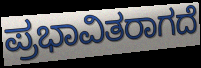
ಪ್ರಭಾವಿತರಾಗದೆ